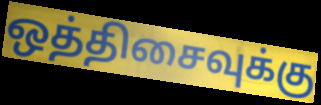
ஒத்திசைவுக்கு